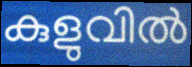
കുളുവിൽ